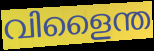
വിളൈന്ത